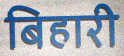
बिहारी